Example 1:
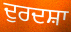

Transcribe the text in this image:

ਦੁਰਦਸ਼ਾ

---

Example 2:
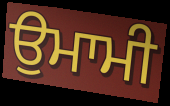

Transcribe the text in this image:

ਉਮਾਮੀ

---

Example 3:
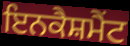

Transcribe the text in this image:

ਇਨਕੈਸ਼ਮੈਂਟ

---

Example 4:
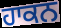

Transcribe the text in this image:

ਹਾਕਨ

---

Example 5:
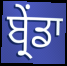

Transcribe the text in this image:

ਬ੍ਰੇਂਡਾ